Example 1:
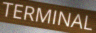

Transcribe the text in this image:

TERMINAL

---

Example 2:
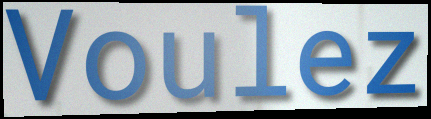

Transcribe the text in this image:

Voulez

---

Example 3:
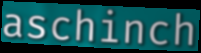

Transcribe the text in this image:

aschinch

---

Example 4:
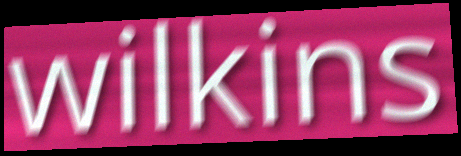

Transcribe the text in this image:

wilkins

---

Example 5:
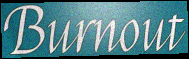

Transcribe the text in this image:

Burnout